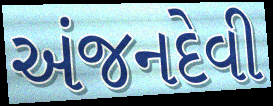
અંજનદેવી